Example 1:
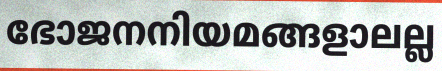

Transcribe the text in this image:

ഭോജനനിയമങ്ങളാലല്ല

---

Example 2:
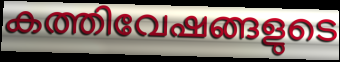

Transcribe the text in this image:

കത്തിവേഷങ്ങളുടെ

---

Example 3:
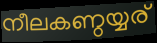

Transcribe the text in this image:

നീലകണ്ഠയ്യര്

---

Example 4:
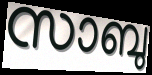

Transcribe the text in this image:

സാബു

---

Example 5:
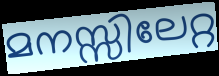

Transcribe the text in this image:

മനസ്സിലേറ്റ